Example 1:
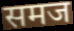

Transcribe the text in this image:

समज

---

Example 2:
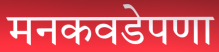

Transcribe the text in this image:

मनकवडेपणा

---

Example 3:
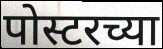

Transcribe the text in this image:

पोस्टरच्या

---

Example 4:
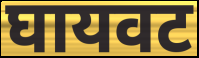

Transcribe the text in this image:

घायवट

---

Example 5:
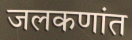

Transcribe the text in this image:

जलकणांत